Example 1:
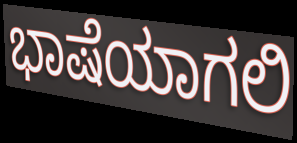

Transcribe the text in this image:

ಭಾಷೆಯಾಗಲಿ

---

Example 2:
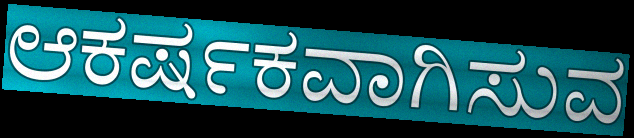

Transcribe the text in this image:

ಆಕರ್ಷಕವಾಗಿಸುವ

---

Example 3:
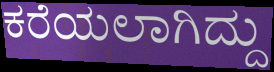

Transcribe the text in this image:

ಕರೆಯಲಾಗಿದ್ದು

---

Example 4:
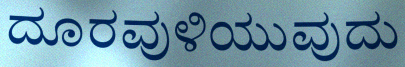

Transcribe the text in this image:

ದೂರವುಳಿಯುವುದು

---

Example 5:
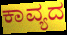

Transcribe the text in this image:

ಕಾವ್ಯದ